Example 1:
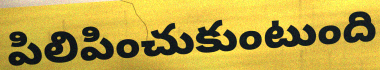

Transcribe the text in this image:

పిలిపించుకుంటుంది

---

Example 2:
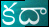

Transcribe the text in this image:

కదా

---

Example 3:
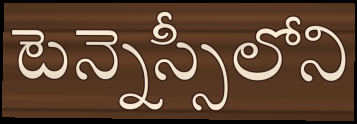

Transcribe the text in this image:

టెన్నెస్సీలోని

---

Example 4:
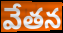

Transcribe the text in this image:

వేతన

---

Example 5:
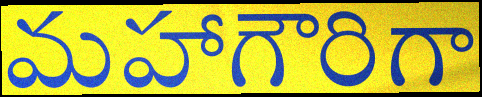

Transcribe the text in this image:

మహాగౌరిగా